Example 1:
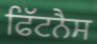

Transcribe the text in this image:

ਫਿੱਟਨੈਸ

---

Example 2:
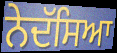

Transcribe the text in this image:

ਨੇਦੱਸਿਆ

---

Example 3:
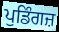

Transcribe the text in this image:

ਪੁਡਿੰਗਜ਼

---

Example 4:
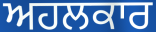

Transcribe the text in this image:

ਅਹਲਕਾਰ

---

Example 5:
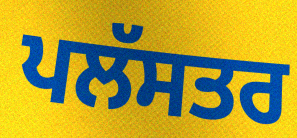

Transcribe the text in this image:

ਪਲੱਸਤਰ